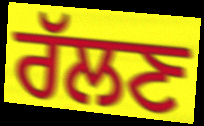
ਰੱਲਣ